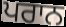
ਪਰਾਨ